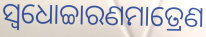
ସ୍ଵଧୋଚ୍ଚାରଣମାତ୍ରେଣ